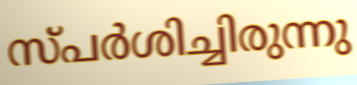
സ്പർശിച്ചിരുന്നു